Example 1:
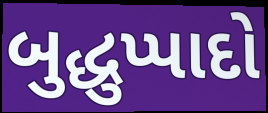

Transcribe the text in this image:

બુદ્ધુપ્પાદો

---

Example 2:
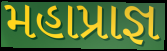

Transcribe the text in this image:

મહાપ્રાજ્ઞ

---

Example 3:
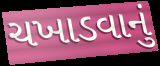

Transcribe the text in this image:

ચખાડવાનું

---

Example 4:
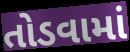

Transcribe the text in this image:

તોડવામાં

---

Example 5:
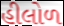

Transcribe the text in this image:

હીલોળ